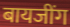
बायजींग